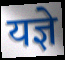
यज्ञे